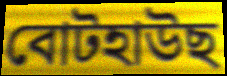
বোটহাউছ